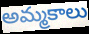
అమ్మకాలు